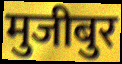
मुजीबुर